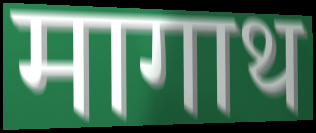
मागाथ